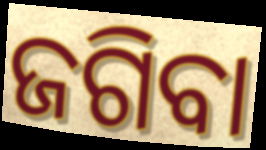
ଜଗିବା